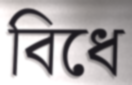
বিধে